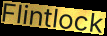
Flintlock